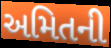
અમિતની